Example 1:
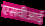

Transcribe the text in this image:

एसवीआई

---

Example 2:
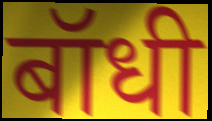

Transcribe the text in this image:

बॉधी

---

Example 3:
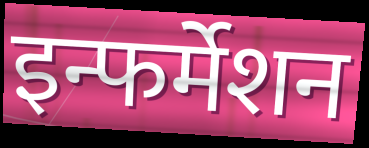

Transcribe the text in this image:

इन्फर्मेशन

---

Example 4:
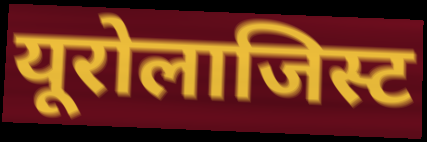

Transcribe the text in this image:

यूरोलाजिस्ट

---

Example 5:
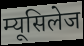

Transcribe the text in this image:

म्यूसिलेज